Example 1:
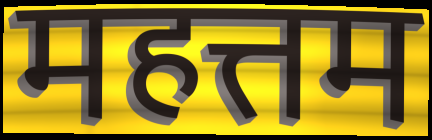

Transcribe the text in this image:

महत्तम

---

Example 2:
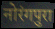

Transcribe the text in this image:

नोरंगपुरा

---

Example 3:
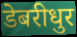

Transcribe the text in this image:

डेबरीधुर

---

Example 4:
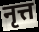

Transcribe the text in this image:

नृत्त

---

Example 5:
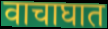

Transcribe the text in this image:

वाचाघात